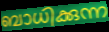
ബാധിക്കുന്ന